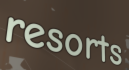
resorts